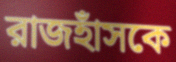
রাজহাঁসকে